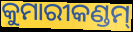
କୁମାରୀକଣ୍ଡମ୍